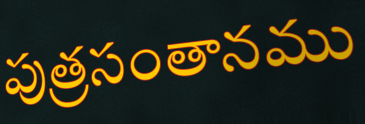
పుత్రసంతానము